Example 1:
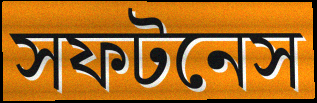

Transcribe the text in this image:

সফটনেস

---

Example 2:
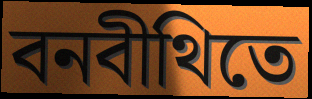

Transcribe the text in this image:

বনবীথিতে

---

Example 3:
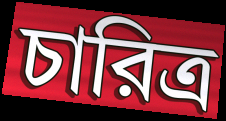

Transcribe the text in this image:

চারিত্র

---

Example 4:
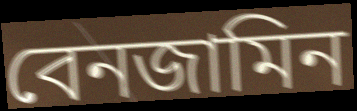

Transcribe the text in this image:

বেনজামিন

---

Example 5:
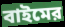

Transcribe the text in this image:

বাইমের